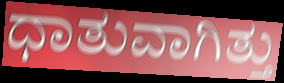
ಧಾತುವಾಗಿತ್ತು